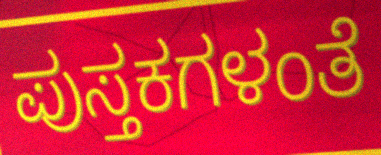
ಪುಸ್ತಕಗಳಂತೆ